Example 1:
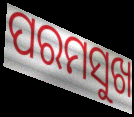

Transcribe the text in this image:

ପରମସୁଖ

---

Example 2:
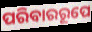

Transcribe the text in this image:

ପରିବାରରୂପେ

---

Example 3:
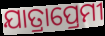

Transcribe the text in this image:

ଯାତ୍ରାପ୍ରେମୀ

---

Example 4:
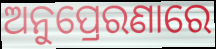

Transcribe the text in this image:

ଅନୁପ୍ରେରଣାରେ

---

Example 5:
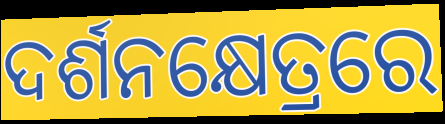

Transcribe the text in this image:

ଦର୍ଶନକ୍ଷେତ୍ରରେ